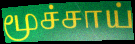
மூச்சாய்